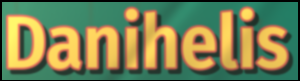
Danihelis